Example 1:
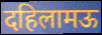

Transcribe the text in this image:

दहिलामऊ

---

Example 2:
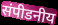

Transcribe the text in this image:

संपीडनीय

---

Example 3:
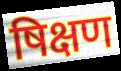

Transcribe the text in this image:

षिक्षण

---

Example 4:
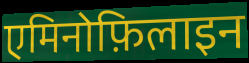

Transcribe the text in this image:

एमिनोफ़िलाइन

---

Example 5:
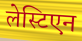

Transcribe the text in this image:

लेस्टिएन